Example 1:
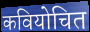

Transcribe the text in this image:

कवियोचित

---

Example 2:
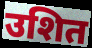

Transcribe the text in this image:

उशित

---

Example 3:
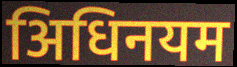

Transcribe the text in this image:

अिधिनयम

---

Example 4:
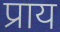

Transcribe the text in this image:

प्राय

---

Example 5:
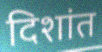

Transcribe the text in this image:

दिशांत